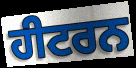
ਹੀਟਰਨ